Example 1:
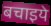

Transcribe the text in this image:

बचाइये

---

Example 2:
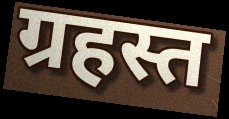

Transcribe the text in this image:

ग्रहस्त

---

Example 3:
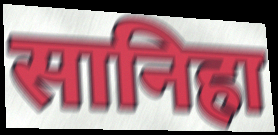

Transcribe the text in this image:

सानिहा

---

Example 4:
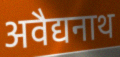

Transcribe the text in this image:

अवैद्यनाथ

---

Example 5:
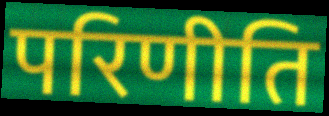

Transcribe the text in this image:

परिणीति